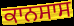
ਕਾਨਸਾਸ